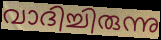
വാദിച്ചിരുന്നു